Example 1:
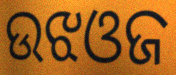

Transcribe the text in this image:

ଉଝଓଜ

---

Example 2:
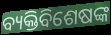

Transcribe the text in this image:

ବ୍ୟକ୍ତିବିଶେଷଙ୍କ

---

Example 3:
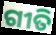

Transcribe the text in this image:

ଗୀତି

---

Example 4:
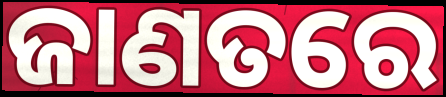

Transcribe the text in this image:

ଜାଣତରେ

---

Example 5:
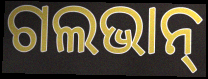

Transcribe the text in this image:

ଗଲଭାନ୍